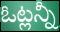
ఓట్లన్నీ